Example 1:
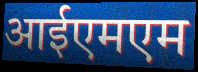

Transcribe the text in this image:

आईएमएम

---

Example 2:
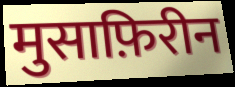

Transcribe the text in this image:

मुसाफ़िरीन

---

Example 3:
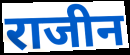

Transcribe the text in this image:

राजीन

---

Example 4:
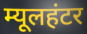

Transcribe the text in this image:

म्यूलहंटर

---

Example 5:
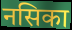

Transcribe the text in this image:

नसिका